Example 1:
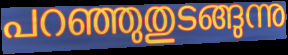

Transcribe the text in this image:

പറഞ്ഞുതുടങ്ങുന്നു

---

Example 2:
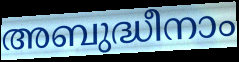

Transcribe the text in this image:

അബുദ്ധീനാം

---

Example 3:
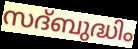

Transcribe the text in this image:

സദ്ബുദ്ധിം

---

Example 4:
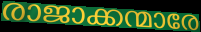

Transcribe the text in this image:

രാജാക്കന്മാരേ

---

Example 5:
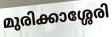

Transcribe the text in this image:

മുരിക്കാശ്ശേരി